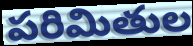
పరిమితుల